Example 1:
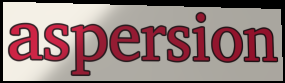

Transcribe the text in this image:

aspersion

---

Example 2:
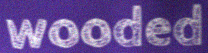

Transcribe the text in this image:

wooded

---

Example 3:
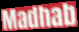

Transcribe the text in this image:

Madhab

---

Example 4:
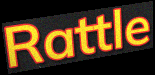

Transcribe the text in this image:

Rattle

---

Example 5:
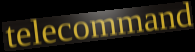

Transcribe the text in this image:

telecommand